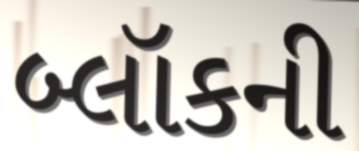
બ્લૉકની